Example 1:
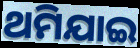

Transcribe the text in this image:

ଥମିଯାଇ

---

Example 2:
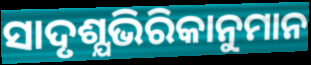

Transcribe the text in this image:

ସାଦୃଶ୍ଯଭିରିକାନୁମାନ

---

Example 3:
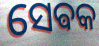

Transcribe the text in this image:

ସେଵକ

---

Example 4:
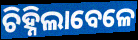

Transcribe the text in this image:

ଚିହ୍ନିଲାବେଳେ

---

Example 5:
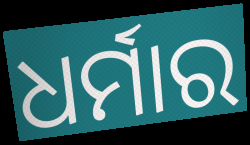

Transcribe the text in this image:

ଧର୍ମାର